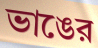
ভাঙের